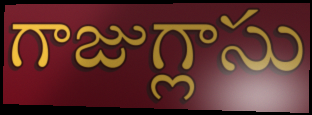
గాజుగ్లాసు